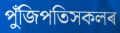
পুঁজিপতিসকলৰ